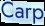
Carp